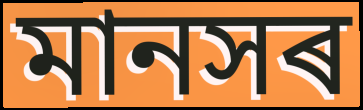
মানসৰ